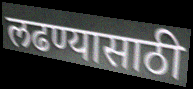
लढण्यासाठी